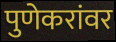
पुणेकरांवर